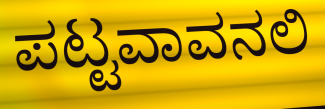
ಪಟ್ಟವಾವನಲಿ